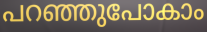
പറഞ്ഞുപോകാം